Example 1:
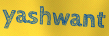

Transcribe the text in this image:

yashwant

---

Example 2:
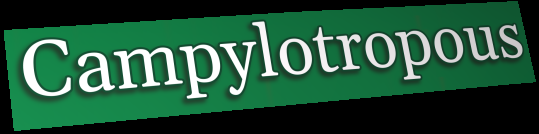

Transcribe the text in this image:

Campylotropous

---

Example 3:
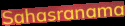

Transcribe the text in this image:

Sahasranama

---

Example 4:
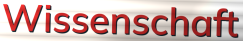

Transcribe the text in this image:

Wissenschaft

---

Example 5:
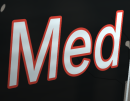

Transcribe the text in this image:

Med